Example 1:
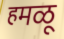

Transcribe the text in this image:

हमळू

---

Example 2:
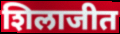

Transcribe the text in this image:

शिलाजीत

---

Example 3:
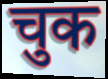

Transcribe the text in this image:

चुक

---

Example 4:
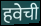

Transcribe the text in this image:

हवेची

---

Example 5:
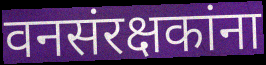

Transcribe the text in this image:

वनसंरक्षकांना